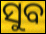
ସୁବ